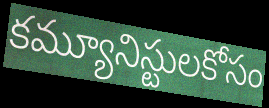
కమ్యూనిస్టులకోసం